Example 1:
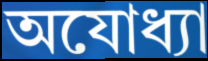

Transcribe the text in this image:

অযোধ্যা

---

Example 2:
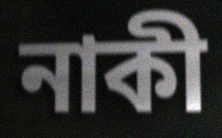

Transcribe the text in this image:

নাকী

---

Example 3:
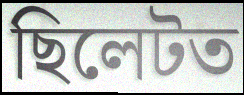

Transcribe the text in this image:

ছিলেটত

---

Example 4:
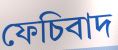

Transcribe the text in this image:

ফেচিবাদ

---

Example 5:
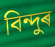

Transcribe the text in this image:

বিন্দুৰ